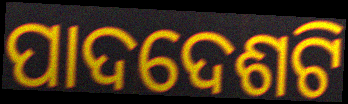
ପାଦଦେଶଟି